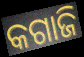
କଗାଜି